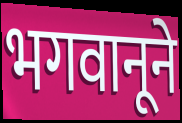
भगवानूने